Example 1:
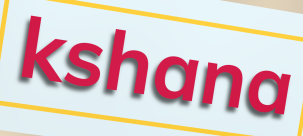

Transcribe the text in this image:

kshana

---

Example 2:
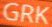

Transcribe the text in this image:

GRK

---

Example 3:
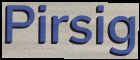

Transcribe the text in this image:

Pirsig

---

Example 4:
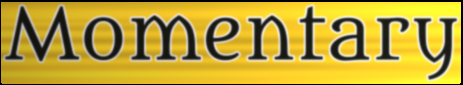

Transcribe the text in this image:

Momentary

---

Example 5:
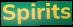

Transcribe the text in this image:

Spirits